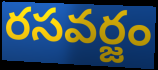
రసవర్జం